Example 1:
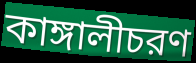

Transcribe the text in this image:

কাঙ্গালীচরণ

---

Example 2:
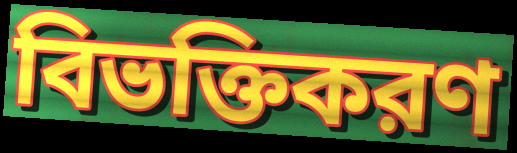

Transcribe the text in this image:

বিভক্তিকরণ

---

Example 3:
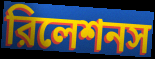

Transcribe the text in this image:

রিলেশনস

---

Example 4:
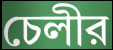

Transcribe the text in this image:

চেলীর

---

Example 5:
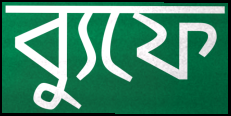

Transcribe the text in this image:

ব্যুফে